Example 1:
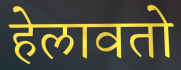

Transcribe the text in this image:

हेलावतो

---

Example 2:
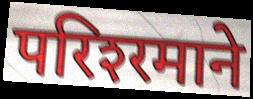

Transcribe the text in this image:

परिश्रमाने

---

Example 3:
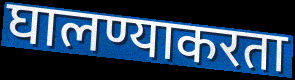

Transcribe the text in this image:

घालण्याकरता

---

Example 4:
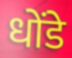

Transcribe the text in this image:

धोंडे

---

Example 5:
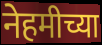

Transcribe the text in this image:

नेहमीच्या